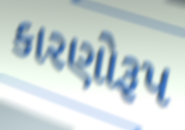
કારણોરૂપ